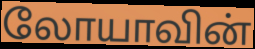
லோயாவின்